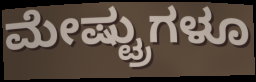
ಮೇಷ್ಟ್ರುಗಳೂ